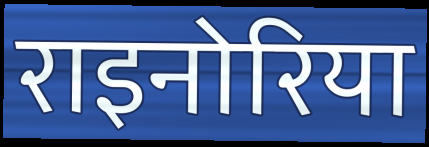
राइनोरिया